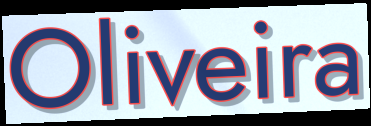
Oliveira